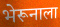
भेरूनाला